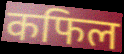
कफिल